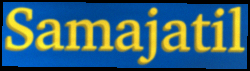
Samajatil